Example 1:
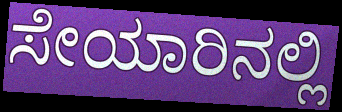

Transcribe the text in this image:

ಸೇಯಾರಿನಲ್ಲಿ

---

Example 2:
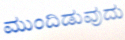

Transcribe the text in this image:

ಮುಂದಿಡುವುದು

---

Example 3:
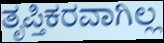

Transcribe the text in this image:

ತೃಪ್ತಿಕರವಾಗಿಲ್ಲ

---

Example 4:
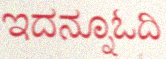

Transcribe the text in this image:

ಇದನ್ನೂಓದಿ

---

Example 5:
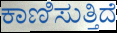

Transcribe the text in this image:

ಕಾಣಿಸುತ್ತಿದೆ